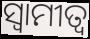
ସ୍ଵାମୀତ୍ବ